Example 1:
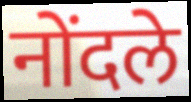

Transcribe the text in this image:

नोंदले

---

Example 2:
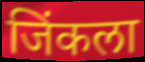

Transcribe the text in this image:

जिंकला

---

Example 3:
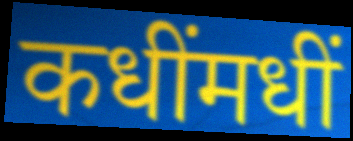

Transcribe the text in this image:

कधींमधीं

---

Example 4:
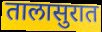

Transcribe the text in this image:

तालासुरात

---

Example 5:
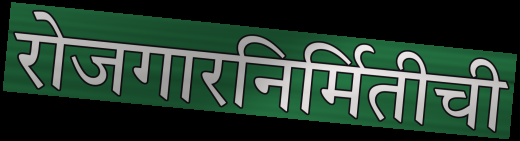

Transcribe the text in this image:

रोजगारनिर्मितीची